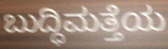
ಬುದ್ಧಿಮತ್ತೆಯ